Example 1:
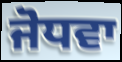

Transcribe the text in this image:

ਜੋਧਵਾ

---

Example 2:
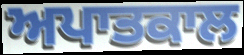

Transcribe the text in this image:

ਅਪਾਤਕਾਲ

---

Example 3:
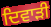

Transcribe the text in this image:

ਦਿਵਾੜੀ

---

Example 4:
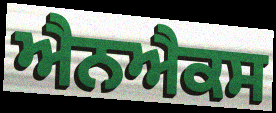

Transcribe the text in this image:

ਐਨਐਕਸ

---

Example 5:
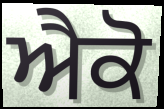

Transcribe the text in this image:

ਐਕੋ